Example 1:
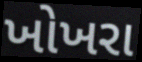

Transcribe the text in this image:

ખોખરા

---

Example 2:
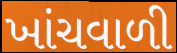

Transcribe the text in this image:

ખાંચવાળી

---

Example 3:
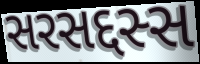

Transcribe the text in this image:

સરસદ્દસ્સ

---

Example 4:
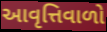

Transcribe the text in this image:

આવૃત્તિવાળો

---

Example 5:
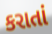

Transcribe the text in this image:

કરાતાં